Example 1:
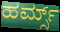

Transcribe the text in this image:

ಹರ್ಮ್ಸ್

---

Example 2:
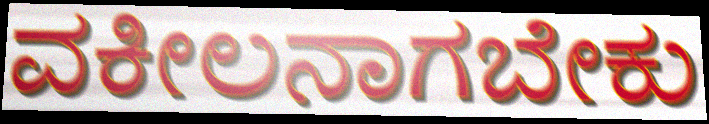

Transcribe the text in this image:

ವಕೀಲನಾಗಬೇಕು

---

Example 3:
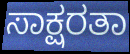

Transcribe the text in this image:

ಸಾಕ್ಷರತಾ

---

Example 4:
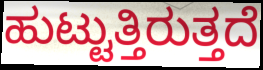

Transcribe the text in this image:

ಹುಟ್ಟುತ್ತಿರುತ್ತದೆ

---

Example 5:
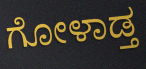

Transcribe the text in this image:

ಗೋಳಾಡ್ತ